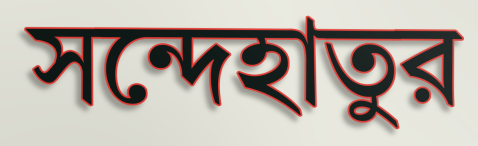
সন্দেহাতুর